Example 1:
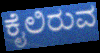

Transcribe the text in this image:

ಕೈಲಿರುವ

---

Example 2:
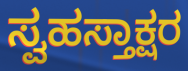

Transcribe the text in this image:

ಸ್ವಹಸ್ತಾಕ್ಷರ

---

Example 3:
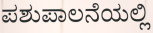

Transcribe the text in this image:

ಪಶುಪಾಲನೆಯಲ್ಲಿ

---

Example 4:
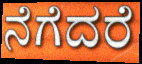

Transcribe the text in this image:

ನೆಗೆದರೆ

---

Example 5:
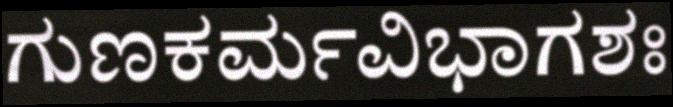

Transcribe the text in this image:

ಗುಣಕರ್ಮವಿಭಾಗಶಃ